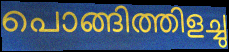
പൊങ്ങിത്തിളച്ചു